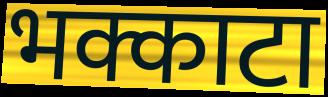
भक्काटा